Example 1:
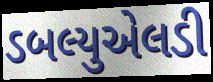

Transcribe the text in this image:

ડબલ્યુએલડી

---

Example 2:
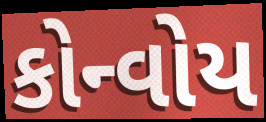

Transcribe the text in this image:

કોન્વોય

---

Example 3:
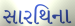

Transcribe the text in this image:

સારથિના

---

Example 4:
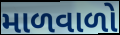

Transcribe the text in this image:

માળવાળો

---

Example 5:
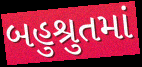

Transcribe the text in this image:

બહુશ્રુતમાં